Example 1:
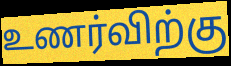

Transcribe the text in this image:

உணர்விற்கு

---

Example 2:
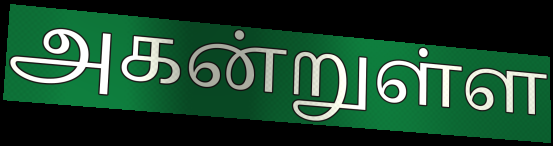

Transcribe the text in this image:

அகன்றுள்ள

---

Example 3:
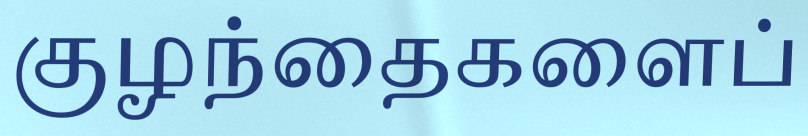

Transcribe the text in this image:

குழந்தைகளைப்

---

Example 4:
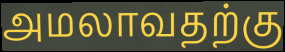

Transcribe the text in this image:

அமலாவதற்கு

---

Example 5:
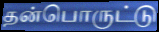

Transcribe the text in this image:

தன்பொருட்டு